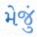
મેજું